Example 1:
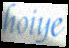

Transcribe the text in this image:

hoiye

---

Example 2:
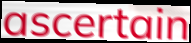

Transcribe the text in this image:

ascertain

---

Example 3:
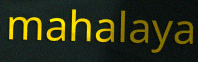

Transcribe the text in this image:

mahalaya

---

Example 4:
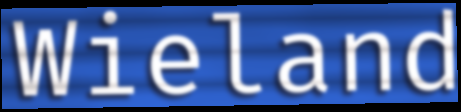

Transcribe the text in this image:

Wieland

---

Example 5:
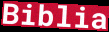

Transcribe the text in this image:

Biblia